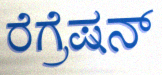
ರೆಗ್ರೆಷನ್